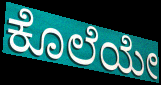
ಕೊಲೆಯೇ